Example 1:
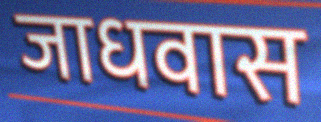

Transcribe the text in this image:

जाधवास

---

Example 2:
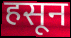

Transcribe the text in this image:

हसून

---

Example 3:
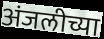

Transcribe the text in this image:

अंजलीच्या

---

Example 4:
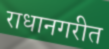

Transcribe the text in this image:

राधानगरीत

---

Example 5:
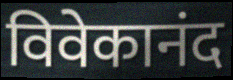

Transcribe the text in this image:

विवेकानंद